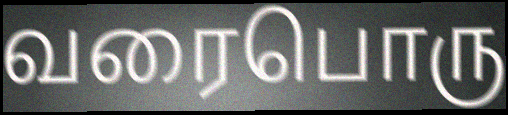
வரைபொரு